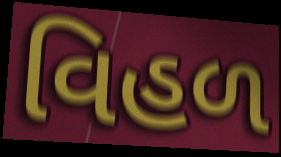
વિહળ